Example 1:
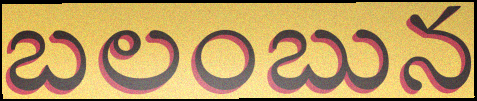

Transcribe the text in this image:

బలంబున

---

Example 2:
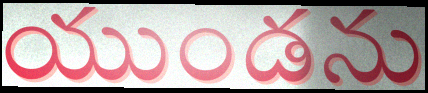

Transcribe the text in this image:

యుండను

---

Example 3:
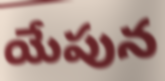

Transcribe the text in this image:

యేపున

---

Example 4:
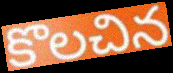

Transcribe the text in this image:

కొలచిన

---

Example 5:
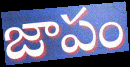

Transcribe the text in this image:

జాపం